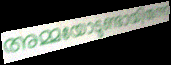
അമ്മയോടുണ്ടായിരുന്ന